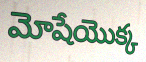
మోషేయొక్క